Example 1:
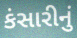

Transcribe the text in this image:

કંસારીનું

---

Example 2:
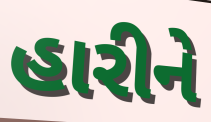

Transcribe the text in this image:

હારીને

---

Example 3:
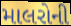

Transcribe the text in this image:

માલરોની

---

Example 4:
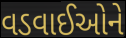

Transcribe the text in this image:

વડવાઈઓને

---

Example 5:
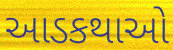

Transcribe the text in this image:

આડકથાઓ